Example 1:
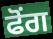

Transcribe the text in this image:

ਫੋਂਗ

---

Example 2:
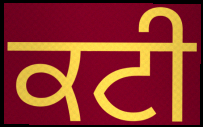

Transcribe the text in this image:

ਕਟੀ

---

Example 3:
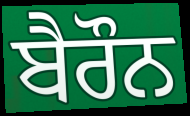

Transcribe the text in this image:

ਬੈਰੌਨ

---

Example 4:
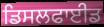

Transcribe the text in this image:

ਡਿਸਲਫਾਈਡ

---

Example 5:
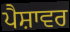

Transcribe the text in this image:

ਪੈਸ਼ਾਵਰ